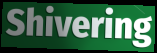
Shivering